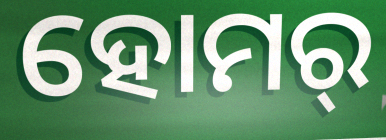
ହୋମର୍